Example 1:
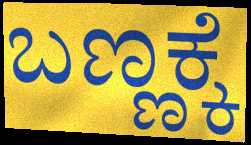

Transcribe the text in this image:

ಬಣ್ಣಕ್ಕೆ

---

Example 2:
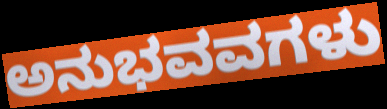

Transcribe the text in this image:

ಅನುಭವವಗಳು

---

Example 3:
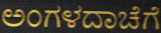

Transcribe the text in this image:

ಅಂಗಳದಾಚೆಗೆ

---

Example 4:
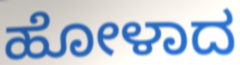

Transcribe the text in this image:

ಹೋಳಾದ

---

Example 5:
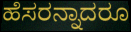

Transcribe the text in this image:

ಹೆಸರನ್ನಾದರೂ